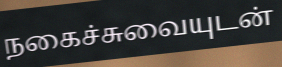
நகைச்சுவையுடன்